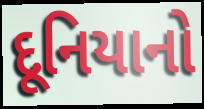
દૂનિયાનો